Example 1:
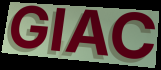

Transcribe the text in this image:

GIAC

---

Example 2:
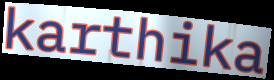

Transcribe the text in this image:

karthika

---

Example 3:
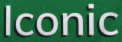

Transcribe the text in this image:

Iconic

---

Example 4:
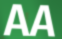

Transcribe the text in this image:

AA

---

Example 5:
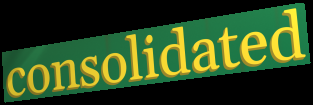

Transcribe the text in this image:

consolidated